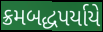
ક્રમબદ્ધપર્યાયે